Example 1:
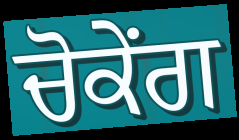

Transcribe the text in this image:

ਚੋਕੇਂਗ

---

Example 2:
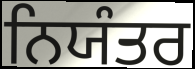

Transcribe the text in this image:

ਨਿਯੰਤਰ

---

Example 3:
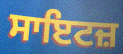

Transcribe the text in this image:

ਸਾਇਟਜ਼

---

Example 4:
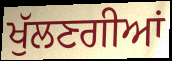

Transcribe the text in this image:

ਖੁੱਲਣਗੀਆਂ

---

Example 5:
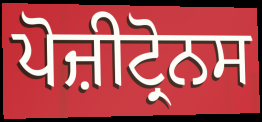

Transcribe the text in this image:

ਪੋਜ਼ੀਟ੍ਰੋਨਸ